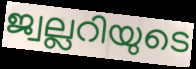
ജ്വല്ലറിയുടെ